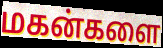
மகன்களை